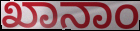
ಖಾನಾಂ